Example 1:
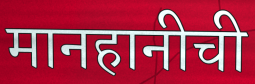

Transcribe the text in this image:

मानहानीची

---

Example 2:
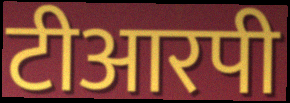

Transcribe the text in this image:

टीआरपी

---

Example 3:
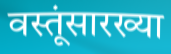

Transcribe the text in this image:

वस्तूंसारख्या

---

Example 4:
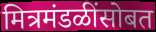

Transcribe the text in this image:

मित्रमंडळींसोबत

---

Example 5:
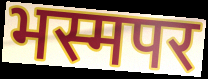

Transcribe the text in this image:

भस्मपर